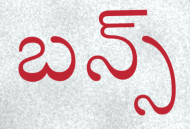
బన్స్